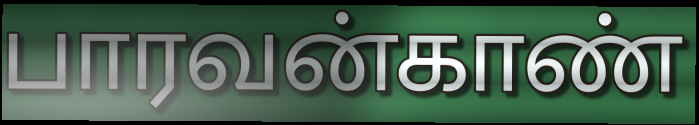
பாரவன்காண்